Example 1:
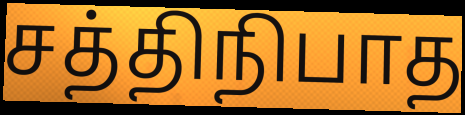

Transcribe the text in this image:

சத்திநிபாத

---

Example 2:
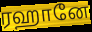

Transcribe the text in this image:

ரஹானே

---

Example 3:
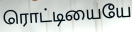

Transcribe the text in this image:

ரொட்டியையே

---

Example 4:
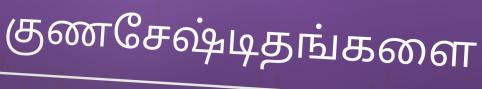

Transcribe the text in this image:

குணசேஷ்டிதங்களை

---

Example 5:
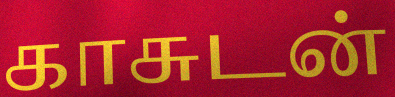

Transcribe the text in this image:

காசுடன்